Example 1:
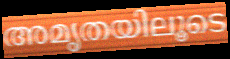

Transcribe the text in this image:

അമൃതയിലൂടെ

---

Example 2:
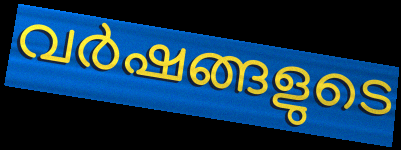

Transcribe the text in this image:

വർഷങ്ങളുടെ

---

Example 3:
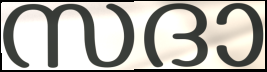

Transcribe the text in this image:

സദാ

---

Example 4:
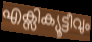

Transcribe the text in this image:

എക്സിക്യൂട്ടീവും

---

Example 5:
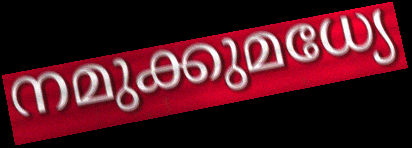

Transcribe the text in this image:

നമുക്കുമധ്യേ